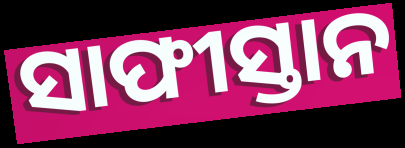
ସାଫୀସ୍ତାନ